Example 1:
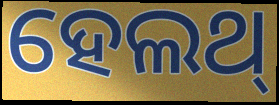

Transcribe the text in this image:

ହେଲଥ୍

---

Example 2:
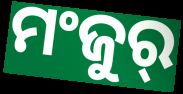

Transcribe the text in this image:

ମଂଜୁର୍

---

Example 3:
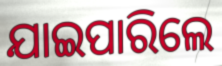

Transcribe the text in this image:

ଯାଇପାରିଲେ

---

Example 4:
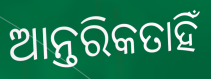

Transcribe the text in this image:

ଆନ୍ତରିକତାହିଁ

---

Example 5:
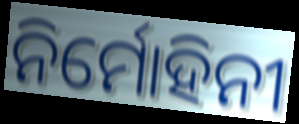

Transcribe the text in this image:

ନିର୍ମୋହିନୀ